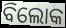
ବିଲୋକ